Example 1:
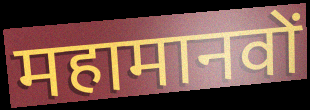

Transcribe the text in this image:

महामानवों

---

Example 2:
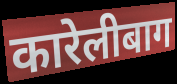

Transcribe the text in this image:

कारेलीबाग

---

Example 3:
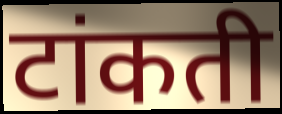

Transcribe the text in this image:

टांकती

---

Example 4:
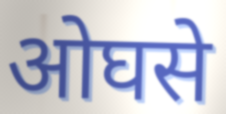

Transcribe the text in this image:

ओघसे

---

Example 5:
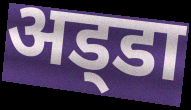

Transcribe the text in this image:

अड्‍डा